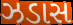
ઝડાસ